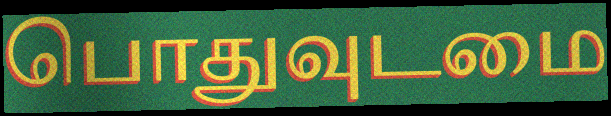
பொதுவுடமை